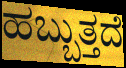
ಹಬ್ಬುತ್ತದೆ